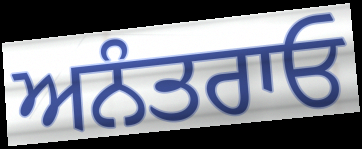
ਅਨੰਤਰਾਓ